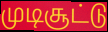
முடிசூட்டு